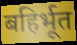
बहिर्भूत